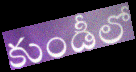
కుండీలో